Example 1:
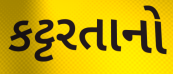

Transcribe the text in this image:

કટ્ટરતાનો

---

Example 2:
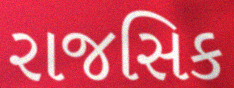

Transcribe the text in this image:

રાજસિક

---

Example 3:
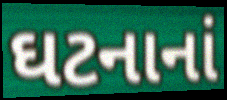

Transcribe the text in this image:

ઘટનાનાં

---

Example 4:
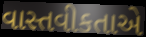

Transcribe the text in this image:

વાસ્તવીકતાએ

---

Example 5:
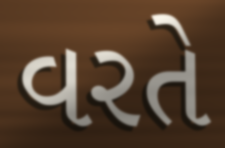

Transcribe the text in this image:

વરતે